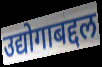
उद्योगाबद्दल